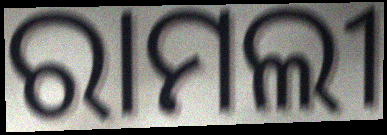
ରାମଲୀ